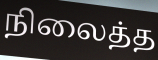
நிலைத்த